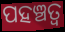
ପହଞ୍ଚତ୍ବ